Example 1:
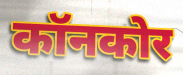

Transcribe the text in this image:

कॉनकोर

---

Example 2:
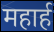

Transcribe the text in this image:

महार्ह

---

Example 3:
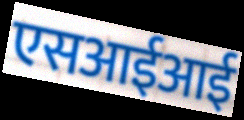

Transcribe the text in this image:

एसआईआई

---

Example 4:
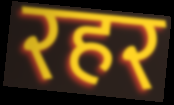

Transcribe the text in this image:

रहर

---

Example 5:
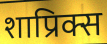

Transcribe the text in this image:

शाप्रिक्स